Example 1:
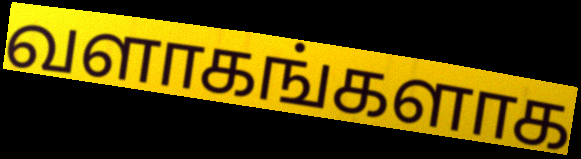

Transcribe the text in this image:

வளாகங்களாக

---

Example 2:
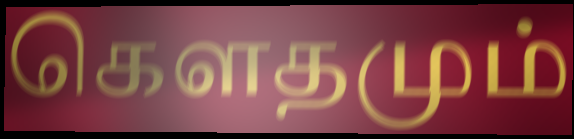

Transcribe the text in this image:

கெளதமும்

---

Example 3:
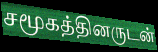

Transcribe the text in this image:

சமூகத்தினருடன்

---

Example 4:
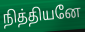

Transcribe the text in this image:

நித்தியனே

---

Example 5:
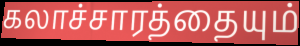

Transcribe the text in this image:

கலாச்சாரத்தையும்